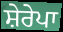
ਸ਼ੇਰੇਪਾ